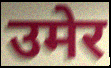
उमेर